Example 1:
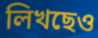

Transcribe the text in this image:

লিখছেও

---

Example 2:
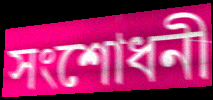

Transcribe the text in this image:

সংশোধনী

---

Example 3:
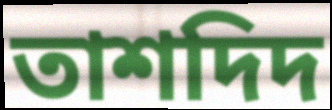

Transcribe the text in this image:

তাশদিদ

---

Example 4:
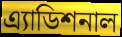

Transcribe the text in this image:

এ্যাডিশনাল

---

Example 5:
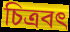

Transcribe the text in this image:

চিত্রবৎ